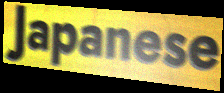
Japanese